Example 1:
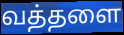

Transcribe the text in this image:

வத்தளை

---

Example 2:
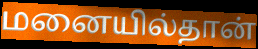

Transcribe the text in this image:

மனையில்தான்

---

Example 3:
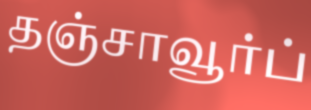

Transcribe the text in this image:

தஞ்சாவூர்ப்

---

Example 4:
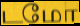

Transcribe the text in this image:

டமோ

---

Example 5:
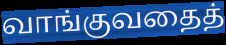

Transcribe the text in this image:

வாங்குவதைத்